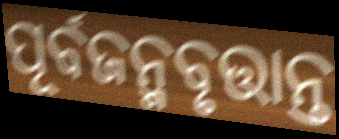
ପୂର୍ବଜନ୍ମବୃତ୍ତାନ୍ତ